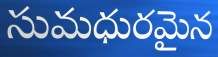
సుమధురమైన